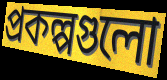
প্রকল্পগুলো